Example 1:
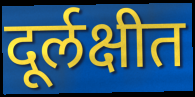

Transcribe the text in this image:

दूर्लक्षीत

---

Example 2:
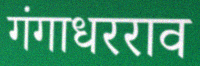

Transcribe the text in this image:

गंगाधरराव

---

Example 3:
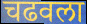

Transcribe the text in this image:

चढवला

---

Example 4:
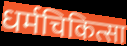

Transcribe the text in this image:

धर्मचिकित्सा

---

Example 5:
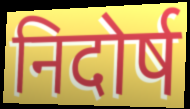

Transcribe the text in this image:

निदोर्ष